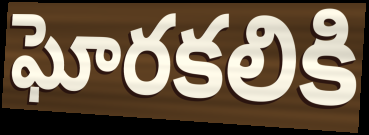
ఘోరకలికి